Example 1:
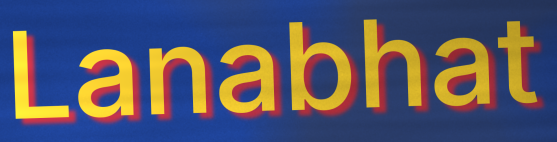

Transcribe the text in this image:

Lanabhat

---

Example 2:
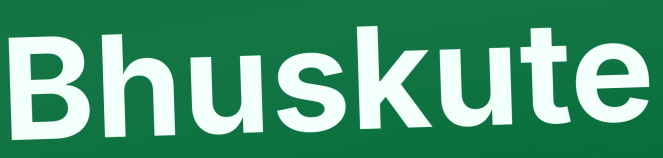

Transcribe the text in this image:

Bhuskute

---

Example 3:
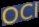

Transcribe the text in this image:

OCI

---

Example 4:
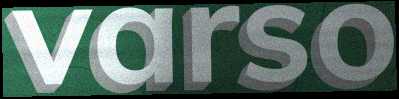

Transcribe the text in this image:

varso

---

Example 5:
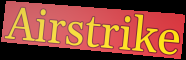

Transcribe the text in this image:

Airstrike